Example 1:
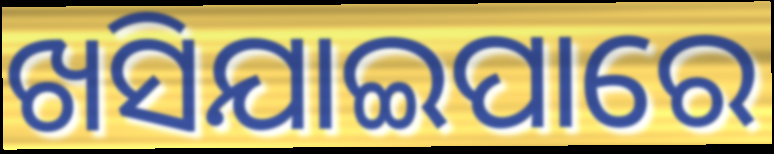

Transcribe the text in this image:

ଖସିଯାଇପାରେ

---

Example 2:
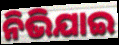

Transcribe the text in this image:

ନିଭିଯାଇ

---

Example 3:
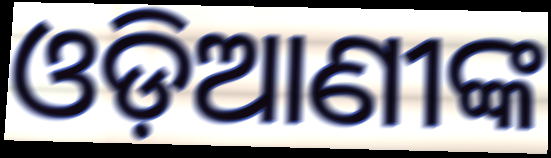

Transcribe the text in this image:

ଓଡ଼ିଆଣୀଙ୍କ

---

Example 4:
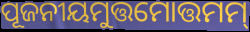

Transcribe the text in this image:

ପୂଜନୀୟମୁତ୍ତମୋତ୍ତମମ୍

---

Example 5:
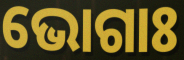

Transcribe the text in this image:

ଭୋଗାଃ